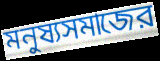
মনুষ্যসমাজের